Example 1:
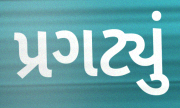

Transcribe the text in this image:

પ્રગટ્યું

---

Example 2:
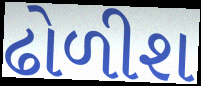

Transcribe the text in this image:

ઢોળીશ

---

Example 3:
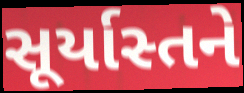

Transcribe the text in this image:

સૂર્યાસ્તને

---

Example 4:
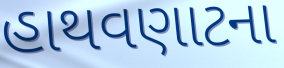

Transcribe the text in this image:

હાથવણાટના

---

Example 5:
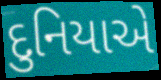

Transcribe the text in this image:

દુનિયાએ